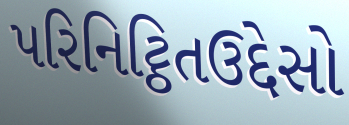
પરિનિટ્ઠિતઉદ્દેસો